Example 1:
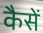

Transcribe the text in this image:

कैसें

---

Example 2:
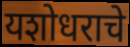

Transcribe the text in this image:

यशोधराचे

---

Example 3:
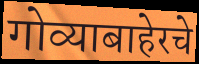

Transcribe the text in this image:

गोव्याबाहेरचे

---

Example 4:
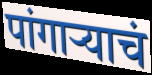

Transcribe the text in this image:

पांगाऱ्याचं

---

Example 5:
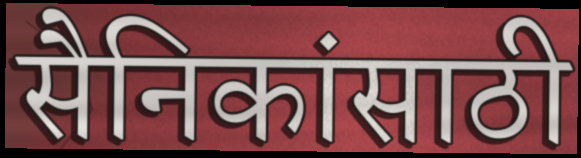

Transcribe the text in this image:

सैनिकांसाठी